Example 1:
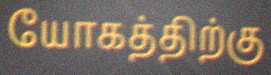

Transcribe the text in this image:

யோகத்திற்கு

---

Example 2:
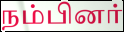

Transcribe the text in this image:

நம்பினர்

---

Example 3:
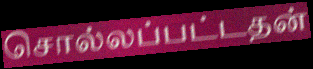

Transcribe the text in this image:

சொல்லப்பட்டதன்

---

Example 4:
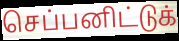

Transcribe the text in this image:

செப்பனிட்டுக்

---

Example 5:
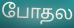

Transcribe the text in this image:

போதல